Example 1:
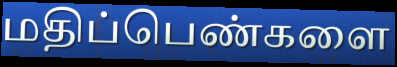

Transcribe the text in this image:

மதிப்பெண்களை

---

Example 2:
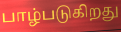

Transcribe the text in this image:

பாழ்படுகிறது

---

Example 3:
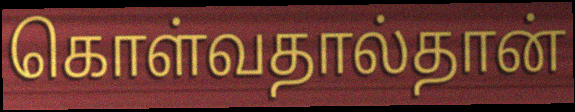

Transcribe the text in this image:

கொள்வதால்தான்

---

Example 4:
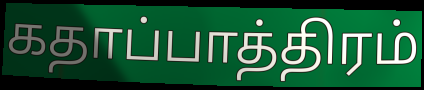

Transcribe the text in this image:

கதாப்பாத்திரம்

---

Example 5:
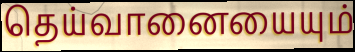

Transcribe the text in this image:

தெய்வானையையும்